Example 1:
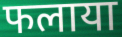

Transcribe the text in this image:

फलाया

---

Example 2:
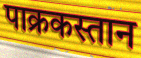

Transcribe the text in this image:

पाक्रकस्तान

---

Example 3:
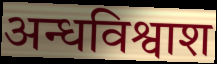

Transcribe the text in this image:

अन्धविश्वाश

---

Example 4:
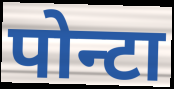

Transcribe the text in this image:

पोन्टा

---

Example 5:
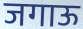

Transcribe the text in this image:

जगाऊ